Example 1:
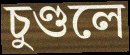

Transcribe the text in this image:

চুণ্ডলে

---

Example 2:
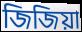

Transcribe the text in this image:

জিজিয়া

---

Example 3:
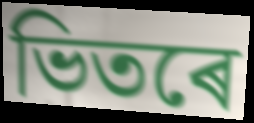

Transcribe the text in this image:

ভিতৰে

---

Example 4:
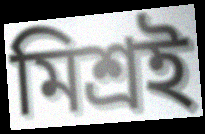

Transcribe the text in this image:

মিশ্ৰই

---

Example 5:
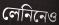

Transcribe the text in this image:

লেনিনেও